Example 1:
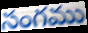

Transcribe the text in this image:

సంగము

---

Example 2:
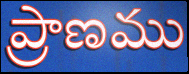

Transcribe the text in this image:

ప్రాణము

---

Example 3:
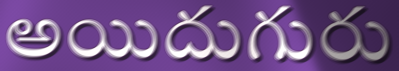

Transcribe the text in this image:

అయిదుగురు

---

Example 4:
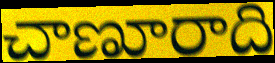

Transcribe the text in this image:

చాణూరాది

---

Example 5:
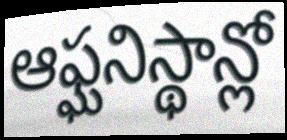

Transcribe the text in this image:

ఆఫ్ఘనిస్థాన్లో